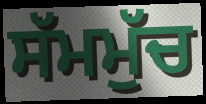
ਸੱਮਮੁੱਚ